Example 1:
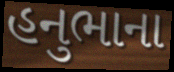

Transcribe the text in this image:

હનુભાના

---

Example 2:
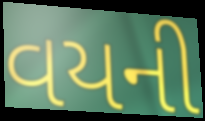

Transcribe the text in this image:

વયની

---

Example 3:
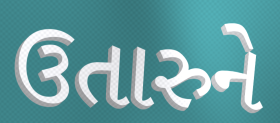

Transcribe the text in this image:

ઉતારુને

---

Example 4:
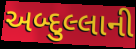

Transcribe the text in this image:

અબ્દુલ્લાની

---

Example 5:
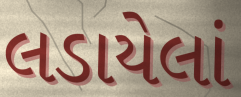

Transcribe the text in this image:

લડાયેલાં